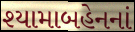
શ્યામાબહેનનાં